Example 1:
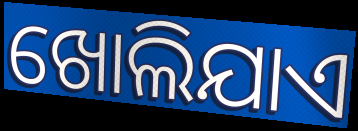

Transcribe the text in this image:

ଖୋଲିଯାଏ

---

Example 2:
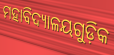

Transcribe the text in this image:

ମହାବିଦ୍ୟାଳୟଗୁଡ଼ିକ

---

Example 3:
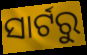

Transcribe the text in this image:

ସାର୍ଟରୁ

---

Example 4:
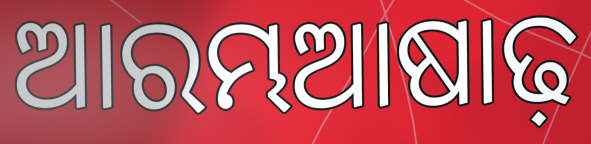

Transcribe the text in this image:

ଆରମ୍ଭଆଷାଢ଼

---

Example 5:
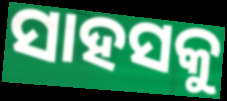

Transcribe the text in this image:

ସାହସକୁ